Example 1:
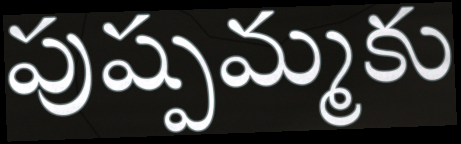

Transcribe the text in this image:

పుష్పమ్మకు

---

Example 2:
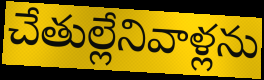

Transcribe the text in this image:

చేతుల్లేనివాళ్లను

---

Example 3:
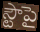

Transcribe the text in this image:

స్టౌపై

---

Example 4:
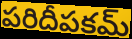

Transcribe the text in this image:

పరిదీపకమ్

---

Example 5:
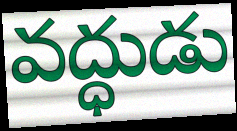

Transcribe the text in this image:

వద్ధుడు